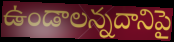
ఉండాలన్నదానిపై